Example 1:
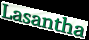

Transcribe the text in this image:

Lasantha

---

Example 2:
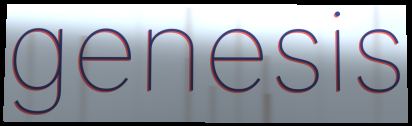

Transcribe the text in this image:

genesis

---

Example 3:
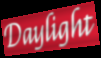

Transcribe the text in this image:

Daylight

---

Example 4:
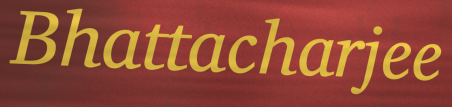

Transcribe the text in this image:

Bhattacharjee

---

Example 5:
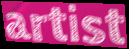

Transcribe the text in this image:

artist